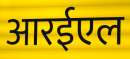
आरईएल